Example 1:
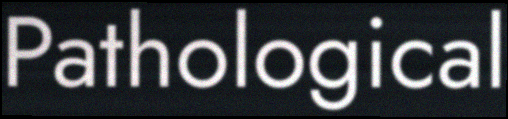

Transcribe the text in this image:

Pathological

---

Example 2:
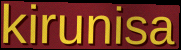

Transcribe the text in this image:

kirunisa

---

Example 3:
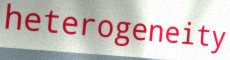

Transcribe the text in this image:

heterogeneity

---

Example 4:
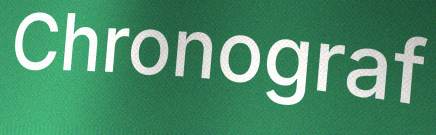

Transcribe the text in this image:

Chronograf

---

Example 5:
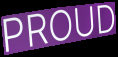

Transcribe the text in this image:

PROUD